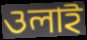
ওলাই